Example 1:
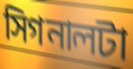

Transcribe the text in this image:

সিগনালটা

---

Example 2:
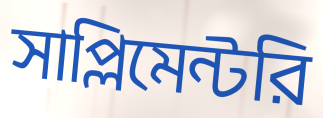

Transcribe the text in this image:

সাপ্লিমেন্টরি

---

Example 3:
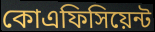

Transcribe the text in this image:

কোএফিসিয়েন্ট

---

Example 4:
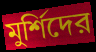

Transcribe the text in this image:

মুর্শিদের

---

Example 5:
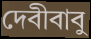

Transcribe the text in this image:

দেবীবাবু